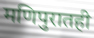
मणिपुरातही